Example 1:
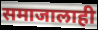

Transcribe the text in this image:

समाजालाही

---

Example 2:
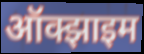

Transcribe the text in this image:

ऑक्झाइम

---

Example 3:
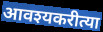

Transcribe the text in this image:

आवश्यकरीत्या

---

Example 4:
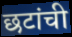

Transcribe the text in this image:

छटांची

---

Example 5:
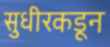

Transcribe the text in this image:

सुधीरकडून